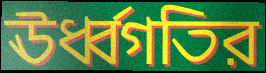
ঊর্ধ্বগতির